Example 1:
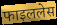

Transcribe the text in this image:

फाइललेस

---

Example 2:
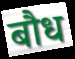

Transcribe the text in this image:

बौध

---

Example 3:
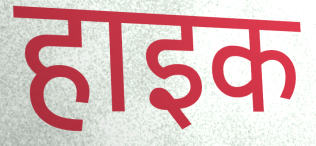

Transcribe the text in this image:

हाइक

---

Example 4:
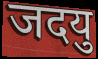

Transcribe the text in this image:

जदयु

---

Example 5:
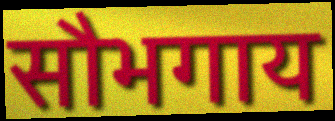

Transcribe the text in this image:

सौभगाय